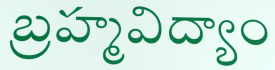
బ్రహ్మవిద్యాం